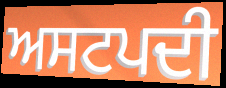
ਅਸਟਪਦੀ